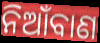
ନିଆଁବାଣ